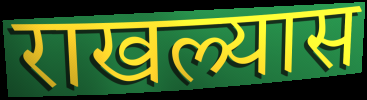
राखल्यास